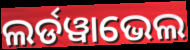
ଲର୍ଡୱାଭେଲ